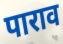
पाराव